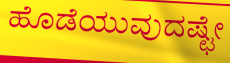
ಹೊಡೆಯುವುದಷ್ಟೇ